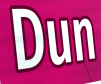
Dun